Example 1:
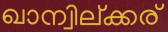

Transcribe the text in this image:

ഖാന്വില്ക്കര്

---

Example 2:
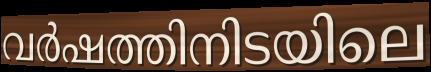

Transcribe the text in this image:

വർഷത്തിനിടയിലെ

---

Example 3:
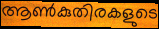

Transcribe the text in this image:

ആൺകുതിരകളുടെ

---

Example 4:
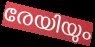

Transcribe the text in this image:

രേയിയും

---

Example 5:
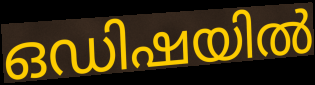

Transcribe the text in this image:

ഒഡിഷയിൽ